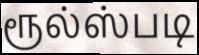
ரூல்ஸ்படி